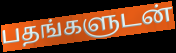
பதங்களுடன்